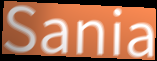
Sania